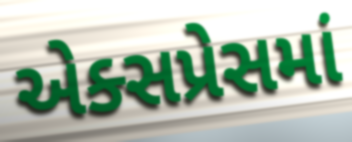
એક્સપ્રેસમાં